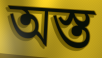
অস্ত